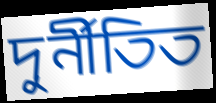
দুৰ্নীতিত